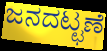
ಜನದಟ್ಟಣೆ